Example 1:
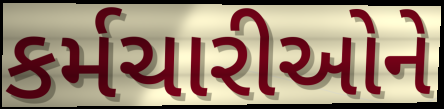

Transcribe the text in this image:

કર્મચારીઓને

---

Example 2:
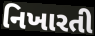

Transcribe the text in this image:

નિખારતી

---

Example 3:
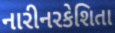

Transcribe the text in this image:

નારીનરકેશિતા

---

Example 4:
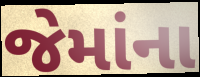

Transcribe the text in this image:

જેમાંના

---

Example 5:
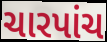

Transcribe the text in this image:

ચારપાંચ